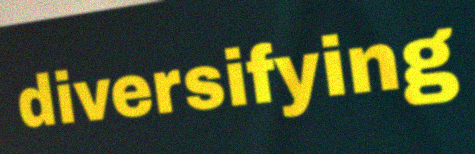
diversifying